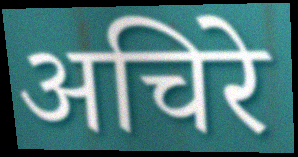
अचिरे